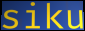
siku